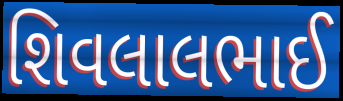
શિવલાલભાઈ